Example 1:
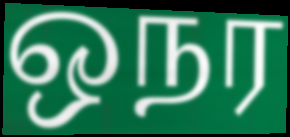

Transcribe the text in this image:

ஒநர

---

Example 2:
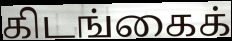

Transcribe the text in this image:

கிடங்கைக்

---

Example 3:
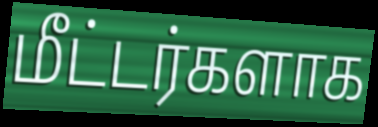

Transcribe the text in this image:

மீட்டர்களாக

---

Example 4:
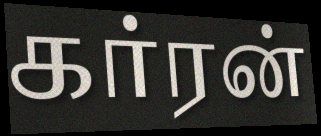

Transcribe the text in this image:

கர்ரன்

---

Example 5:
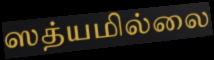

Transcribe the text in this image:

ஸத்யமில்லை